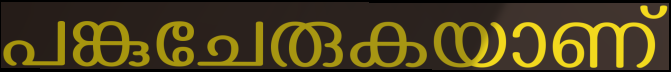
പങ്കുചേരുകയാണ്